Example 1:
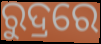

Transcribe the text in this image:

ରୁଦ୍ରରେ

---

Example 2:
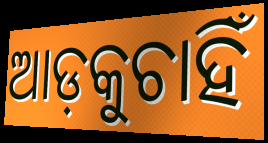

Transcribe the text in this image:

ଆଡ଼କୁଚାହିଁ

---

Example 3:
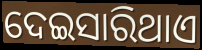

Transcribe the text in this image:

ଦେଇସାରିଥାଏ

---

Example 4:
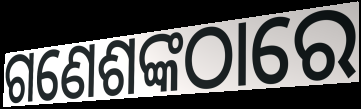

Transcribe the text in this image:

ଗଣେଶଙ୍କଠାରେ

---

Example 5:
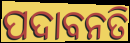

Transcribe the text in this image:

ପଦାବନତି